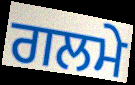
ਗਲਮੇ